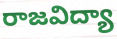
రాజవిద్యా